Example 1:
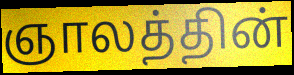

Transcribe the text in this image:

ஞாலத்தின்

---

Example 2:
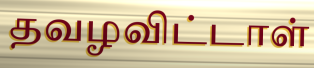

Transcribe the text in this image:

தவழவிட்டாள்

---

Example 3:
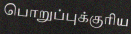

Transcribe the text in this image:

பொறுப்புக்குரிய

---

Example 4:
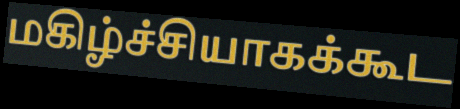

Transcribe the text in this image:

மகிழ்ச்சியாகக்கூட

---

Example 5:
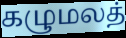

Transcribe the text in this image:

கழுமலத்